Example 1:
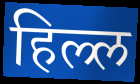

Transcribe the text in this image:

हिल्ल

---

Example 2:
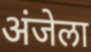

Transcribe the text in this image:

अंजेला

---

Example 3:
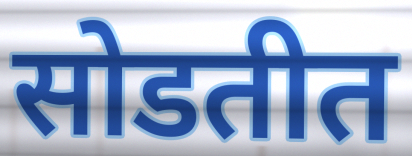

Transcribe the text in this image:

सोडतीत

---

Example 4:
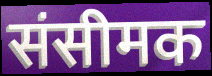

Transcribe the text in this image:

संसीमक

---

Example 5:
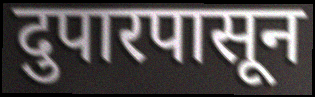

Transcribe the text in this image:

दुपारपासून